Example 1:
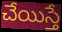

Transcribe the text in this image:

చేయిస్తే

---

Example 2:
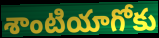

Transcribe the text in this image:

శాంటియాగోకు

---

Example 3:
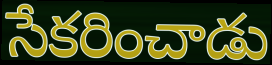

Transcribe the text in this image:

సేకరించాడు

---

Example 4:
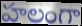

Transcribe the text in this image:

హలంగా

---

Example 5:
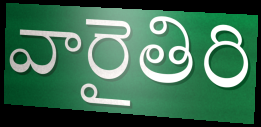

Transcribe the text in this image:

వారైతిరి